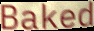
Baked